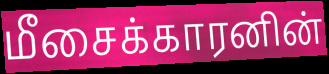
மீசைக்காரனின்